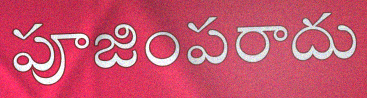
పూజింపరాదు